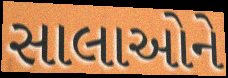
સાલાઓને